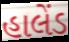
હાલેંડ